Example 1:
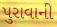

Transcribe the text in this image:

પુરાવાની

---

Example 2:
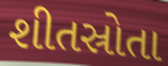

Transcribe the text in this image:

શીતસ્રોતા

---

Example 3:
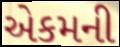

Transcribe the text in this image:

એકમની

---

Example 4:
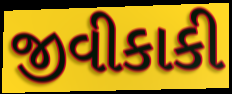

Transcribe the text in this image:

જીવીકાકી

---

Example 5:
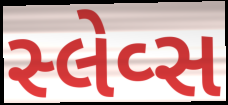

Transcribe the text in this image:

સ્લેવ્સ